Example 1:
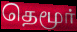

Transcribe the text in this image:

தெமூர்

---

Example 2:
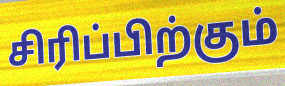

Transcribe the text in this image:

சிரிப்பிற்கும்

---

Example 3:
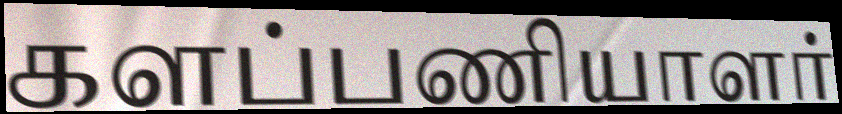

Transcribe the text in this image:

களப்பணியாளர்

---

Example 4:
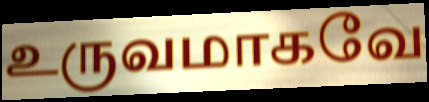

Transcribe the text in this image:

உருவமாகவே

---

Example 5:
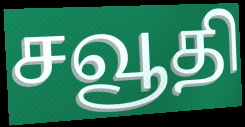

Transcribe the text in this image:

சவூதி